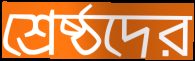
শ্রেষ্ঠদের